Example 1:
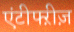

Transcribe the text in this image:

एंटीफ्ऱीज़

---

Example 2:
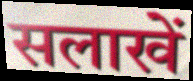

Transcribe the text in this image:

सलाखें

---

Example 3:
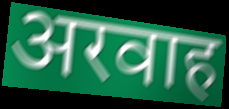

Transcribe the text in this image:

अरवाह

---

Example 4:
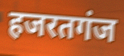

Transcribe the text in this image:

हजरतगंज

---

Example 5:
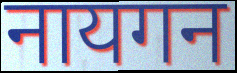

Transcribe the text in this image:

नायगन